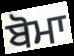
ਬੋਮਾ